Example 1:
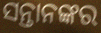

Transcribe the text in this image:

ସନ୍ତାନଙ୍କର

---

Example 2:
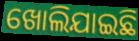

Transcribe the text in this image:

ଖୋଲିଯାଇଛି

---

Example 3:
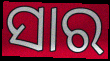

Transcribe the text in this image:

ସାର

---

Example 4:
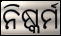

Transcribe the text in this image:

ନିଷ୍କର୍ମ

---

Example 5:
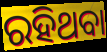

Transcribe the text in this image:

ରହିଥବା